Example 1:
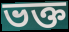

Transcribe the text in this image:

ভক্ত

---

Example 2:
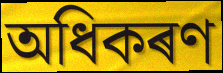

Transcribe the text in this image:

অধিকৰণ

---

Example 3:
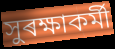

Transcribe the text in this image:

সুৰক্ষাকৰ্মী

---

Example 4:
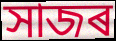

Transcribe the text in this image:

সাজৰ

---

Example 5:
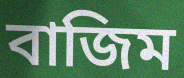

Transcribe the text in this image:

বাজিম